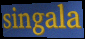
singala